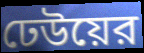
ঢেউয়ের